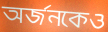
অর্জনকেও